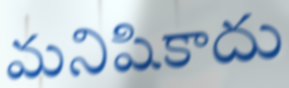
మనిషికాదు